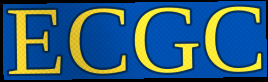
ECGC